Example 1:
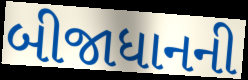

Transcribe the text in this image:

બીજાધાનની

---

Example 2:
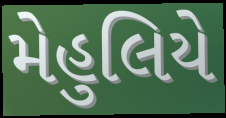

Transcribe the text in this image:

મેહુલિયે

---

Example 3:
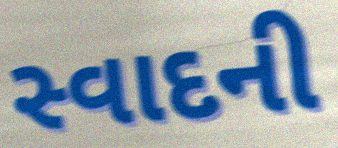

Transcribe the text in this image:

સ્વાદની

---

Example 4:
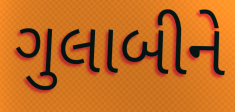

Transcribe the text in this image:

ગુલાબીને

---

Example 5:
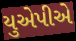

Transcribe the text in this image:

યુએપીએ